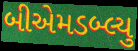
બીએમડબ્લ્યુ